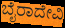
ಬೈರಾದೇವಿ